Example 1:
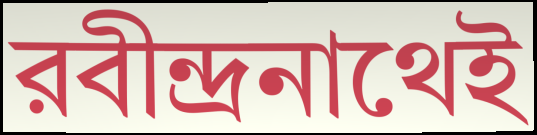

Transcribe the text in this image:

রবীন্দ্রনাথেই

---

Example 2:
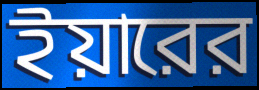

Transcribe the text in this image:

ইয়ারের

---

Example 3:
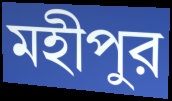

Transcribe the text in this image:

মহীপুর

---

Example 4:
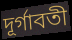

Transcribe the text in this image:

দূর্গাবতী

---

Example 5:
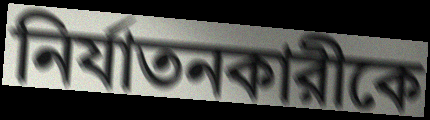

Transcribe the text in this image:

নির্যাতনকারীকে